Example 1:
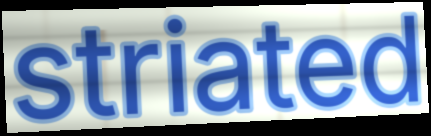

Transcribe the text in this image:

striated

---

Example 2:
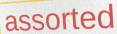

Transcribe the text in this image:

assorted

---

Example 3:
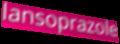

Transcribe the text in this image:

lansoprazole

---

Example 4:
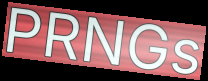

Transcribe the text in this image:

PRNGs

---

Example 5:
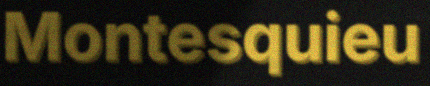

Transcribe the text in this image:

Montesquieu